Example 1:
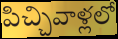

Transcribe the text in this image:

పిచ్చివాళ్లలో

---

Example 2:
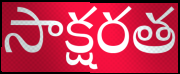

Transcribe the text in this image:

సాక్షరత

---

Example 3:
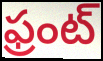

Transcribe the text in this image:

ఫ్రంట్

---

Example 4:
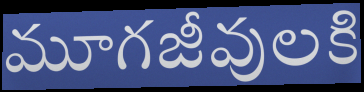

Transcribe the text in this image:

మూగజీవులకి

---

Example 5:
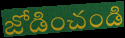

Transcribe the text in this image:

జోడించండి